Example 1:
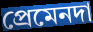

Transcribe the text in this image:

প্রেমেনদা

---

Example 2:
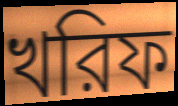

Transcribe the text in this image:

খরিফ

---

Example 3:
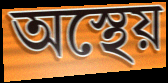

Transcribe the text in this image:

অস্থেয়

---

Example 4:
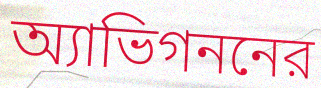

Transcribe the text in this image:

অ্যাভিগননের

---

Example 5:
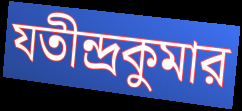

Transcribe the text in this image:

যতীন্দ্রকুমার